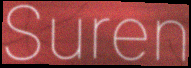
Suren